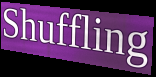
Shuffling